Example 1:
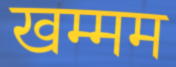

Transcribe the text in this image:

खम्मम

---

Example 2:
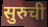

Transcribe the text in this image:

सुरुची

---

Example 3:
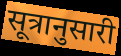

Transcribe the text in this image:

सूत्रानुसारी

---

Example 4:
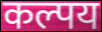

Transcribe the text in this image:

कल्पय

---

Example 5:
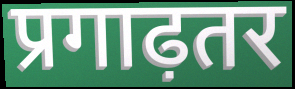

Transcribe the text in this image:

प्रगाढ़तर